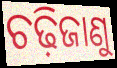
ଚଢ଼ିଜାଣୁ